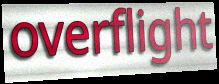
overflight